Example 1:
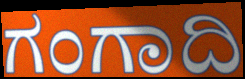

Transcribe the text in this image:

ಗಂಗಾದಿ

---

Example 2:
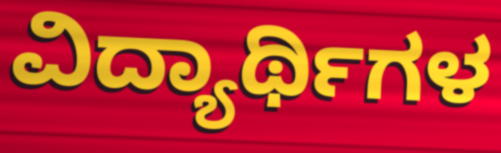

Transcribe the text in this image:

ವಿದ್ಯಾರ್ಥಿಗಳ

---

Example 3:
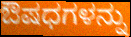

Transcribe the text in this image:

ಔಷಧಗಳನ್ನು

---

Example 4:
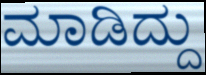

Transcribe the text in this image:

ಮಾಡಿದ್ದು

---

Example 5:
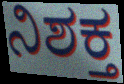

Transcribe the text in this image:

ನಿಶಕ್ತ